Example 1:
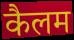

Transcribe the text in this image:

कैलम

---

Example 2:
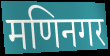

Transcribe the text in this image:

मणिनगर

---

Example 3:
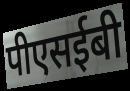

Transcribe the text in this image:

पीएसईबी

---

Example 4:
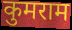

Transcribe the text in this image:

कुमराम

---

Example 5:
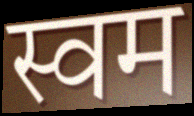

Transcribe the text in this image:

स्वम